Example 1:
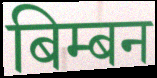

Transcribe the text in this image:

बिम्बन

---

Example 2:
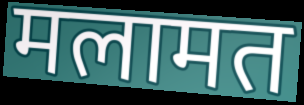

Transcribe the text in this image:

मलामत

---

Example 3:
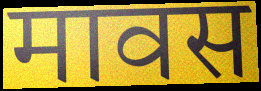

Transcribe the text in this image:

मावस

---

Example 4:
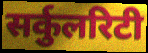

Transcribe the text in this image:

सर्कुलरिटी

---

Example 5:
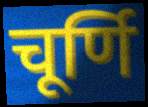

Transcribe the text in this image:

चूर्णि